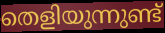
തെളിയുന്നുണ്ട്